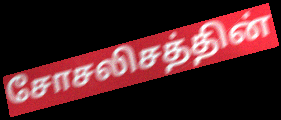
சோசலிசத்தின்